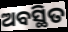
ଅବସ୍ଥିତ